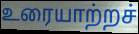
உரையாற்றச்